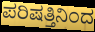
ಪರಿಷತ್ತಿನಿಂದ